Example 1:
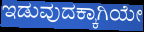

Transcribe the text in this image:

ಇಡುವುದಕ್ಕಾಗಿಯೇ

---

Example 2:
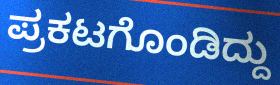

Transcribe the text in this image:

ಪ್ರಕಟಗೊಂಡಿದ್ದು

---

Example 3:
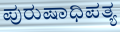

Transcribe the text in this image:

ಪುರುಷಾಧಿಪತ್ಯ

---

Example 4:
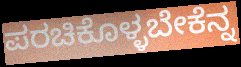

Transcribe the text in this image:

ಪರಚಿಕೊಳ್ಳಬೇಕೆನ್ನ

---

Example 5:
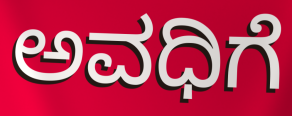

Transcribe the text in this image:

ಅವಧಿಗೆ